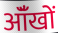
ऑँखों